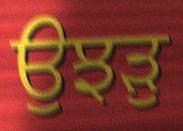
ਉਝੜੁ